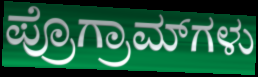
ಪ್ರೊಗ್ರಾಮ್‌ಗಳು